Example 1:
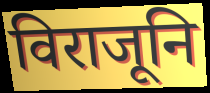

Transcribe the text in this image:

विराजूनि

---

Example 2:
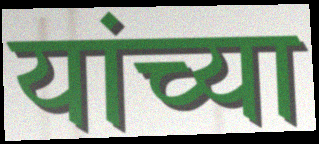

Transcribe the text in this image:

यांच्या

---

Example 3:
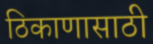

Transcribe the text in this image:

ठिकाणासाठी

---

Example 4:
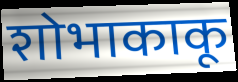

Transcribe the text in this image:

शोभाकाकू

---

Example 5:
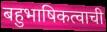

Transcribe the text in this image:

बहुभाषिकत्वाची